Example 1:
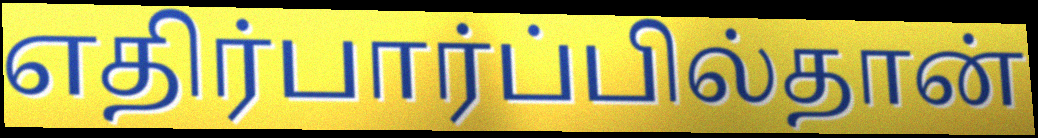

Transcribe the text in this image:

எதிர்பார்ப்பில்தான்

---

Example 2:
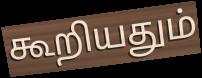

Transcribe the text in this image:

கூறியதும்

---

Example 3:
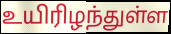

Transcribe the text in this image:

உயிரிழந்துள்ள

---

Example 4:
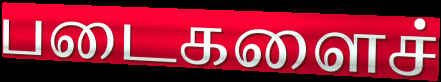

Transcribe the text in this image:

படைகளைச்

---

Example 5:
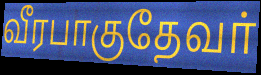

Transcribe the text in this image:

வீரபாகுதேவர்